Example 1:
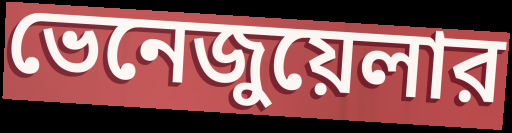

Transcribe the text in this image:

ভেনেজুয়েলার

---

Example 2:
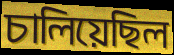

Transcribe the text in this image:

চালিয়েছিল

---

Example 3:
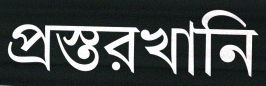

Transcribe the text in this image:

প্রস্তরখানি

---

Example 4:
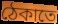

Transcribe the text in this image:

ঠেকাতে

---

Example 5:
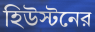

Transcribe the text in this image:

হিউস্টনের